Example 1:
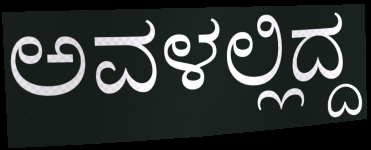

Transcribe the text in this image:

ಅವಳಲ್ಲಿದ್ದ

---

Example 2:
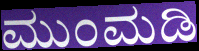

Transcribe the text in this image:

ಮುಂಮಡಿ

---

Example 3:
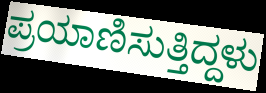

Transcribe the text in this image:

ಪ್ರಯಾಣಿಸುತ್ತಿದ್ದಳು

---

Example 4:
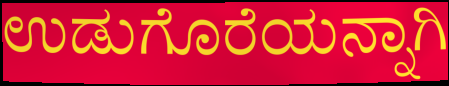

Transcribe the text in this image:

ಉಡುಗೊರೆಯನ್ನಾಗಿ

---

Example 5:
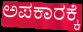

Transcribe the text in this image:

ಅಪಕಾರಕ್ಕೆ